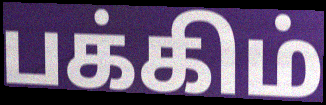
பக்கிம்